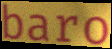
baro